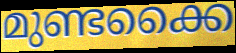
മുണ്ടക്കൈ